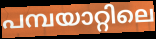
പമ്പയാറ്റിലെ